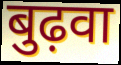
बुढ़वा